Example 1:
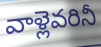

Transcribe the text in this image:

వాళ్లెవరినీ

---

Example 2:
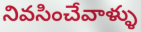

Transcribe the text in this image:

నివసించేవాళ్ళు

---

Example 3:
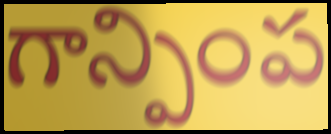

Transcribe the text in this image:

గాన్పింప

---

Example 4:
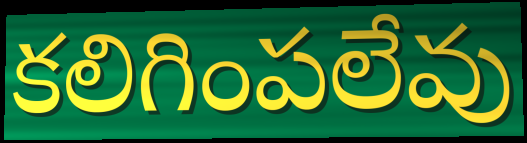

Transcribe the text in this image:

కలిగింపలేవు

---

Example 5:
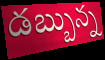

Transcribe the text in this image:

డబ్బున్న